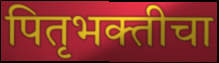
पितृभक्तीचा